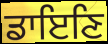
ਡਾਇਣਿ